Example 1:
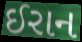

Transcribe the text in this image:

ઈરાન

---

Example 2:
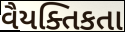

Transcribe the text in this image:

વૈયક્તિકતા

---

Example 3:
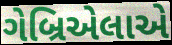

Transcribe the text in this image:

ગેબ્રિએલાએ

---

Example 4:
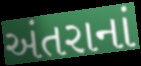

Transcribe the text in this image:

અંતરાનાં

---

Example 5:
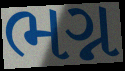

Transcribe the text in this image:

ભગ્ન